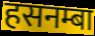
हसनम्बा